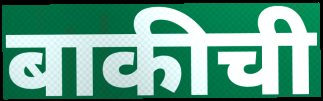
बाकीची